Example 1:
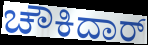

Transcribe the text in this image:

ಚೌಕಿದಾರ್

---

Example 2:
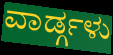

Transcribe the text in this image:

ವಾರ್ಡ್ಗಳು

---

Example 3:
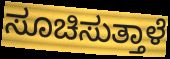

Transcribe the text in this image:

ಸೂಚಿಸುತ್ತಾಳೆ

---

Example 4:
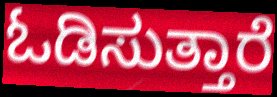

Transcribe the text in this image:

ಓಡಿಸುತ್ತಾರೆ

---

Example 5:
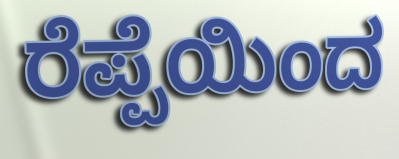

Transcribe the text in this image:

ರೆಪ್ಪೆಯಿಂದ